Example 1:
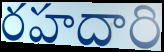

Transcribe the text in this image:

రహదారి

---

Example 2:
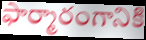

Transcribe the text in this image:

ఫార్మారంగానికి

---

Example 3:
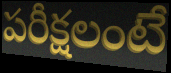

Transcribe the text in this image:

పరీక్షలంటే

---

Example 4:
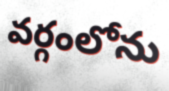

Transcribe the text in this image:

వర్గంలోను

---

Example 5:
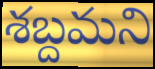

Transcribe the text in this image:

శబ్దమని